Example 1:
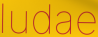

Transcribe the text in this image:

Iudae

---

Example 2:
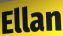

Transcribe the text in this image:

Ellan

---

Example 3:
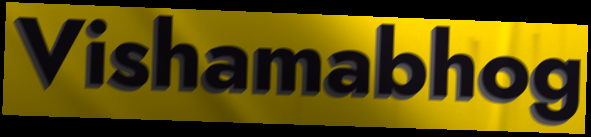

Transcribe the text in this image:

Vishamabhog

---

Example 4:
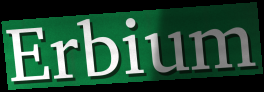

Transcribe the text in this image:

Erbium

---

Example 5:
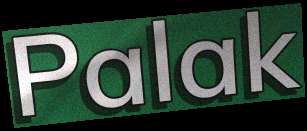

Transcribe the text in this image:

Palak